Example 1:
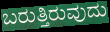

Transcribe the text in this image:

ಬರುತ್ತಿರುವುದು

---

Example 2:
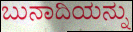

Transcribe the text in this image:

ಬುನಾದಿಯನ್ನು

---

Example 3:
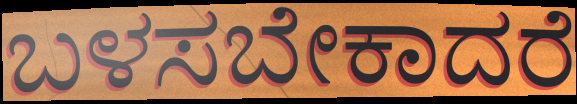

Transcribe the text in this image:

ಬಳಸಬೇಕಾದರೆ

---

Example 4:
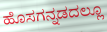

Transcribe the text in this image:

ಹೊಸಗನ್ನಡದಲ್ಲೂ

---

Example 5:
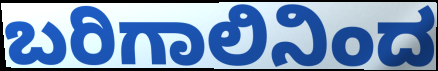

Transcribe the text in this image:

ಬರಿಗಾಲಿನಿಂದ